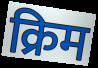
क्रिम